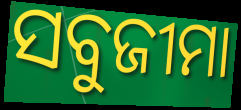
ସବୁଜୀମା